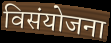
विसंयोजना